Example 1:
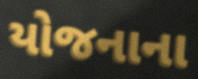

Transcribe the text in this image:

યોજનાના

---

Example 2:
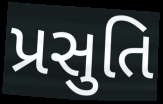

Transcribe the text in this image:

પ્રસુતિ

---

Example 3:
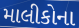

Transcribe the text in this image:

માલીકોના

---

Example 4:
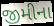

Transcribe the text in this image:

જીમીના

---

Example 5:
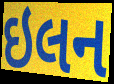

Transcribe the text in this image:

ઇલન